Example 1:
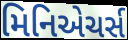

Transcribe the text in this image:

મિનિએચર્સ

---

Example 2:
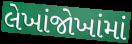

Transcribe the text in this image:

લેખાંજોખાંમાં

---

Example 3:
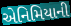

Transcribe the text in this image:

એનિમિયાની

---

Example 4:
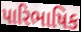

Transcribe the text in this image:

પારિભાષિક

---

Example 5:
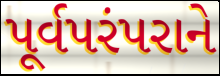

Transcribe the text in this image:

પૂર્વપરંપરાને